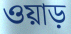
ওয়াড়